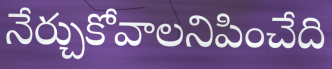
నేర్చుకోవాలనిపించేది